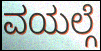
ವಯಲ್ಗೆ